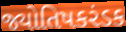
જ્યોતિષકરંડક